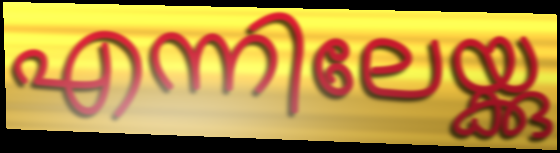
എന്നിലേയ്ക്കു